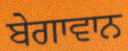
ਬੇਗਾਵਾਨ